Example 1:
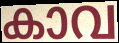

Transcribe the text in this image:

കാവ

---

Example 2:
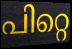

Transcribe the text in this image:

പിറ്റെ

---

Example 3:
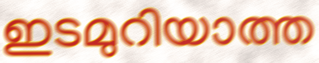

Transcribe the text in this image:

ഇടമുറിയാത്ത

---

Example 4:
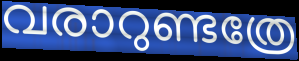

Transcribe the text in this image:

വരാറുണ്ടത്രേ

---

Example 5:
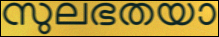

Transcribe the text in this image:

സുലഭതയാ